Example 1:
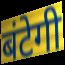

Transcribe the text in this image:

बंटेगी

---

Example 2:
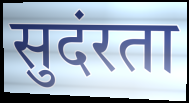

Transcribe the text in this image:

सुदंरता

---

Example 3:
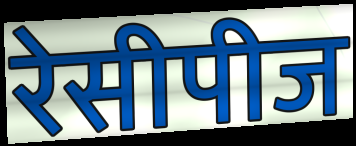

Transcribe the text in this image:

रेसीपीज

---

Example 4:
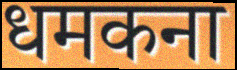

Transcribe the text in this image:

धमकना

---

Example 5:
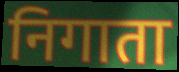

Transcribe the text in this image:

निगाता